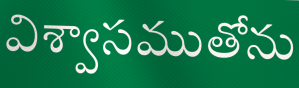
విశ్వాసముతోను